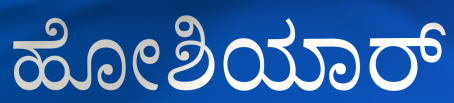
ಹೋಶಿಯಾರ್